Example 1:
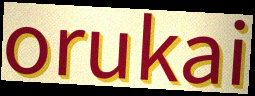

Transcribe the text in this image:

orukai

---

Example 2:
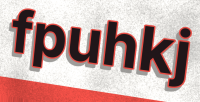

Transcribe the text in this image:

fpuhkj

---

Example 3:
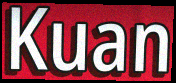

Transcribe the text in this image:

Kuan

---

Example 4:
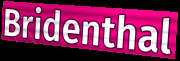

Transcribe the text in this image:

Bridenthal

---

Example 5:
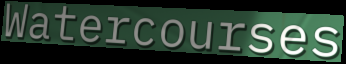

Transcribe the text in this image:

Watercourses